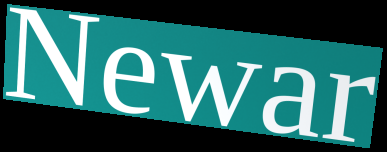
Newar